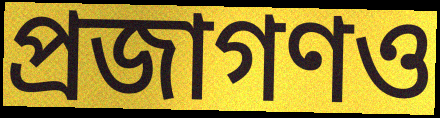
প্রজাগণও